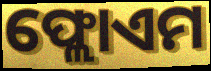
ଫ୍ଲୋଏମ